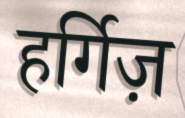
हर्गिज़